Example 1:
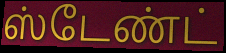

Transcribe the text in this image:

ஸ்டேண்ட்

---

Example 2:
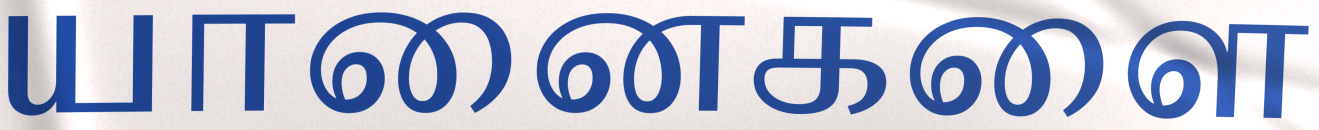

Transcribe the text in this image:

யானைகளை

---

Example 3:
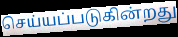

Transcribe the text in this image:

செய்யப்படுகின்றது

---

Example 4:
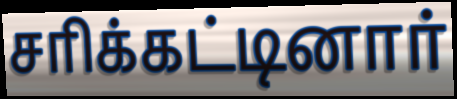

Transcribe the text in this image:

சரிக்கட்டினார்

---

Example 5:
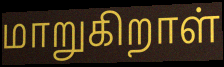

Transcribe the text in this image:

மாறுகிறாள்